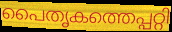
പൈതൃകത്തെപ്പറ്റി